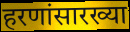
हरणांसारख्या